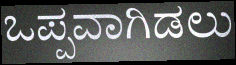
ಒಪ್ಪವಾಗಿಡಲು